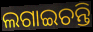
ଲଗାଇଚନ୍ତି